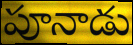
పూనాడు